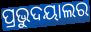
ପ୍ରଭୁଦୟାଲର